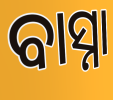
ବାସ୍ନା